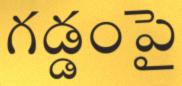
గడ్డంపై